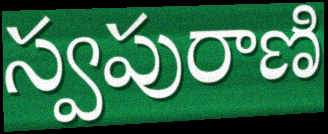
స్వపురాణి